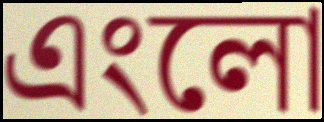
এংলো